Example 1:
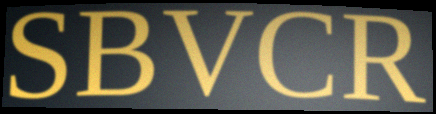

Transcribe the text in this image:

SBVCR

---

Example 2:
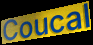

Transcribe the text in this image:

Coucal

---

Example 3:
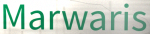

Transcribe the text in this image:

Marwaris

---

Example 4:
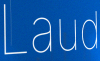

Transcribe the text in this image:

Laud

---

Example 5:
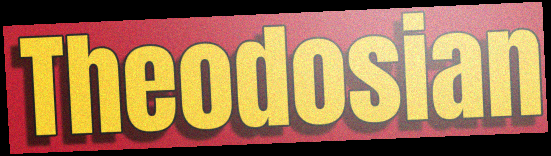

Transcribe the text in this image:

Theodosian